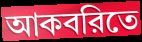
আকবরিতে